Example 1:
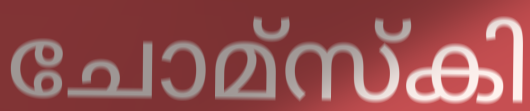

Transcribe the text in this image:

ചോമ്സ്കി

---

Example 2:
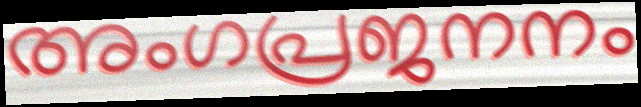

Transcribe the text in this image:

അംഗപ്രജനനം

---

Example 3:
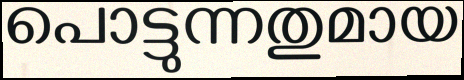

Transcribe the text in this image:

പൊട്ടുന്നതുമായ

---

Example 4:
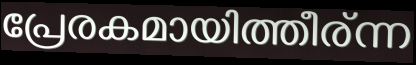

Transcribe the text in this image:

പ്രേരകമായിത്തീര്ന്ന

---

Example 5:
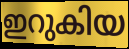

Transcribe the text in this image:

ഇറുകിയ